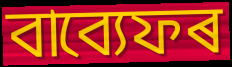
বাব্যেফৰ